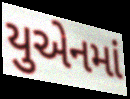
યુએનમાં